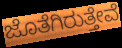
ಜೊತೆಗಿರುತ್ತೇವೆ